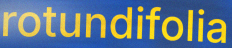
rotundifolia